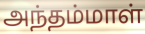
அந்தம்மாள்